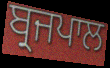
ਬ੍ਰਜਪਾਲ